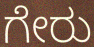
ಗೇರು